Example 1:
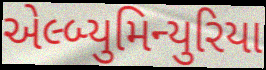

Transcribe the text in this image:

એલ્બ્યુમિન્યુરિયા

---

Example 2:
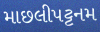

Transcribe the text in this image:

માછલીપટ્ટનમ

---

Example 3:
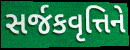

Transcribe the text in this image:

સર્જકવૃત્તિને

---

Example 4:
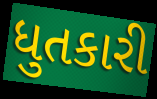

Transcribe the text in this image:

ધુતકારી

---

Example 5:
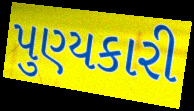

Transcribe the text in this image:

પુણ્યકારી